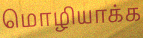
மொழியாக்க